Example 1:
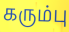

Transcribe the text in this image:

கரும்பு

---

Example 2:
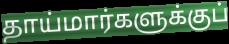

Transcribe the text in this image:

தாய்மார்களுக்குப்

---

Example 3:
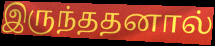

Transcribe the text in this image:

இருந்ததனால்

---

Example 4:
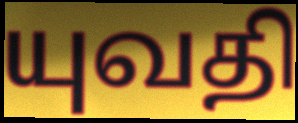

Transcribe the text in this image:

யுவதி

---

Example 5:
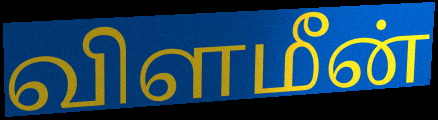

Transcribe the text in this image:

விளமீன்